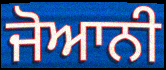
ਜੋਆਨੀ